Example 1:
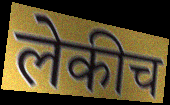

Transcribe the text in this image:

लेकीच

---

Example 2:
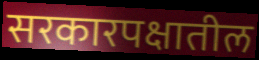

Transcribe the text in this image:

सरकारपक्षातील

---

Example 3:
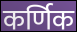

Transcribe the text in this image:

कर्णिक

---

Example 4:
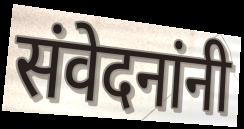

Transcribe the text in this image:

संवेदनांनी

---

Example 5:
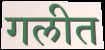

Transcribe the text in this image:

गलीत